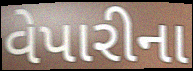
વેપારીના